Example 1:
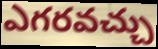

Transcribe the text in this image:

ఎగరవచ్చు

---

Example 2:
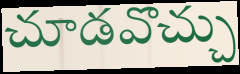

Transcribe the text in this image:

చూడవొచ్చు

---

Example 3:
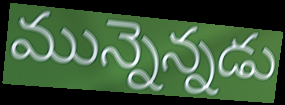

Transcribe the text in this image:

మున్నెన్నడు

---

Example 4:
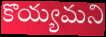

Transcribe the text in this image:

కొయ్యమని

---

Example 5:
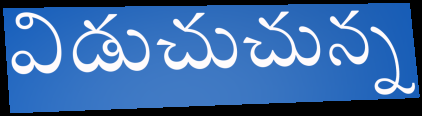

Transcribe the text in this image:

విడుచుచున్న